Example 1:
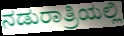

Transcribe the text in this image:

ನಡುರಾತ್ರಿಯಲ್ಲಿ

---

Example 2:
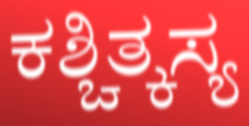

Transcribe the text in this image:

ಕಶ್ಚಿತ್ಕಸ್ಯ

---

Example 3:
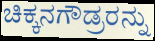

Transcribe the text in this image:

ಚಿಕ್ಕನಗೌಡ್ರರನ್ನು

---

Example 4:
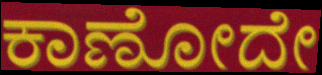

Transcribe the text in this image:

ಕಾಣೋದೇ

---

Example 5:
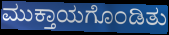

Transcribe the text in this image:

ಮುಕ್ತಾಯಗೊಂಡಿತು